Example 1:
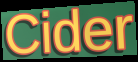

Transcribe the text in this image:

Cider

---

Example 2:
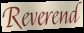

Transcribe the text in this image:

Reverend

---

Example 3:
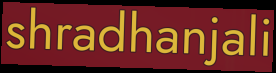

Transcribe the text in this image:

shradhanjali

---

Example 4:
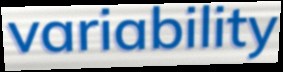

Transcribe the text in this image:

variability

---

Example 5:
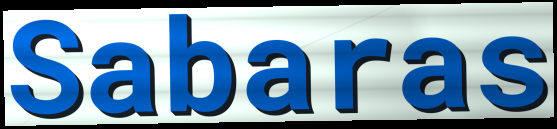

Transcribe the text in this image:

Sabaras